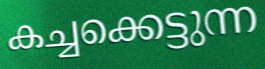
കച്ചക്കെട്ടുന്ന